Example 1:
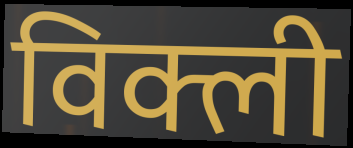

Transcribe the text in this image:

विक्ली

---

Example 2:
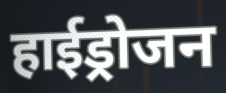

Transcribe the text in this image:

हाईड्रोजन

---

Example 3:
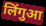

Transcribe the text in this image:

लिंगुआ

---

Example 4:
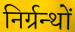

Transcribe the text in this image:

निर्ग्रन्थों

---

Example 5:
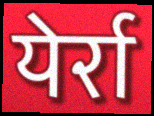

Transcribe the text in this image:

येर्रा